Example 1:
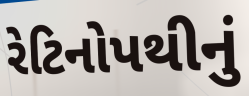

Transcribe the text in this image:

રેટિનોપથીનું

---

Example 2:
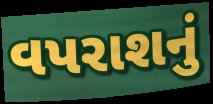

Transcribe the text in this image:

વપરાશનું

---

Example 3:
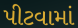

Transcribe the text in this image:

પીટવામાં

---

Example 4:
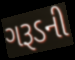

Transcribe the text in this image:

ગરૂડની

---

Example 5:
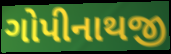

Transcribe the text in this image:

ગોપીનાથજી